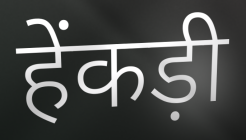
हेंकड़ी